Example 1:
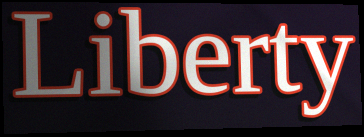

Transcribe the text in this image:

Liberty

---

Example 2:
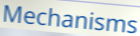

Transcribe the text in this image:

Mechanisms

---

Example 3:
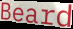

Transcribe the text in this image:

Beard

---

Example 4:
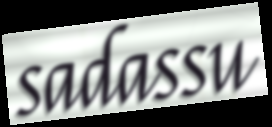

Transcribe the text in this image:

sadassu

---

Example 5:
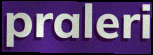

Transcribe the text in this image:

praleri